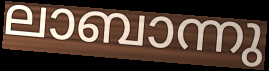
ലാബാന്നു